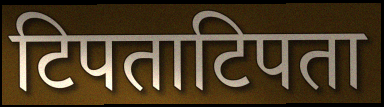
टिपताटिपता